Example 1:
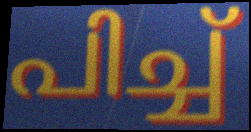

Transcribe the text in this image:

പിച്ച്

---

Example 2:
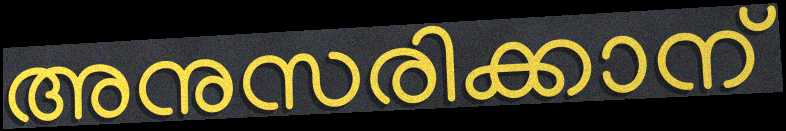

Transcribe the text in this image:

അനുസരിക്കാന്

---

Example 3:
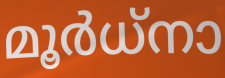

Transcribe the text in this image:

മൂർധ്നാ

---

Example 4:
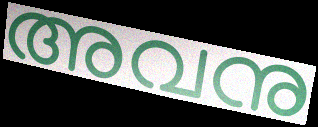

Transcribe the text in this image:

അവനു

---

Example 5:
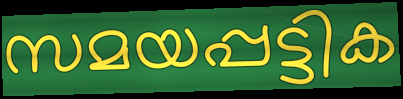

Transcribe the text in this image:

സമയപ്പട്ടിക